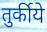
तुर्कीये